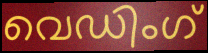
വെഡിംഗ്